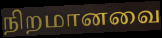
நிறமானவை